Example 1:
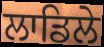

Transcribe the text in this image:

ਲਾਡਿਲੇ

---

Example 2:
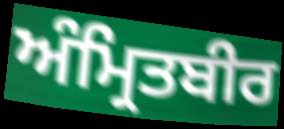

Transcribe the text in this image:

ਅੰਮ੍ਰਿਤਬੀਰ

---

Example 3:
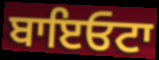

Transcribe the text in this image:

ਬਾਇਓਟਾ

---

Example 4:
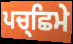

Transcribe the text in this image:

ਪਚ੍ਛਿਮੇ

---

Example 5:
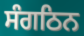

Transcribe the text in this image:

ਸੰਗਠਿਨ